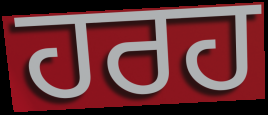
ਹਰਹ